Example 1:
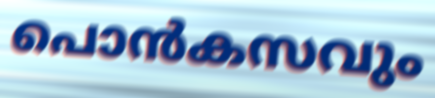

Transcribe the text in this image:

പൊൻകസവും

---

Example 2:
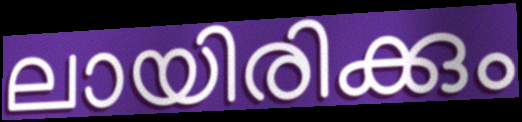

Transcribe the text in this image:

ലായിരിക്കും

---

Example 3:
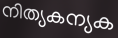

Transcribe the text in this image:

നിത്യകന്യക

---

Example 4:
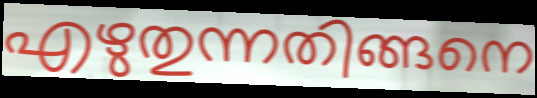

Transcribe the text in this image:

എഴുതുന്നതിങ്ങനെ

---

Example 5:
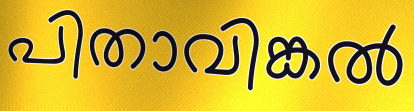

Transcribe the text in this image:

പിതാവിങ്കൽ